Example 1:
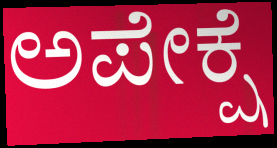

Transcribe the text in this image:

ಅಪೇಕ್ಷೆ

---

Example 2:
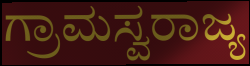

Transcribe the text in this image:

ಗ್ರಾಮಸ್ವರಾಜ್ಯ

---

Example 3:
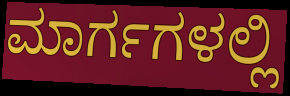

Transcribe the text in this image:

ಮಾರ್ಗಗಳಲ್ಲಿ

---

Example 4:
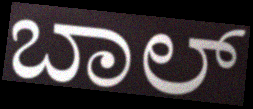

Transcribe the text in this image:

ಬಾಲ್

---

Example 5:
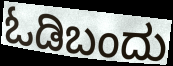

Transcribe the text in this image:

ಓಡಿಬಂದು